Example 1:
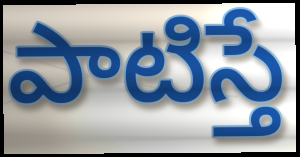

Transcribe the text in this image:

పాటిస్తే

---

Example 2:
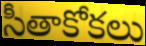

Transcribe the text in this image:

సీతాకోకలు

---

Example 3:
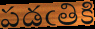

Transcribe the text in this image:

పడఁతికి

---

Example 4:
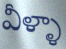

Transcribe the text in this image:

వీళ్ళా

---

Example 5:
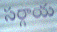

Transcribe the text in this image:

సర్గాయ